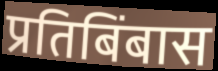
प्रतिबिंबास